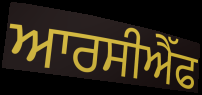
ਆਰਸੀਐੱਫ